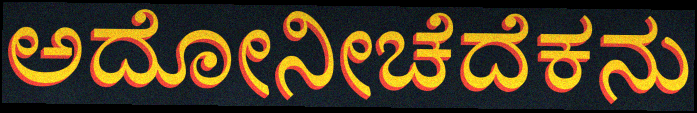
ಅದೋನೀಚೆದೆಕನು